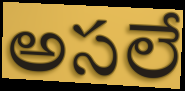
అసలే